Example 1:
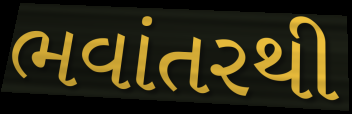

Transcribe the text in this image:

ભવાંતરથી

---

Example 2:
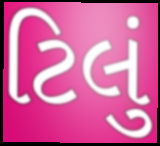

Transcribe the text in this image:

ટિલું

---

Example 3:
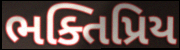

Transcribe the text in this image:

ભક્તિપ્રિય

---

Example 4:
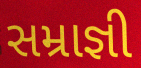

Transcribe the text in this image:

સમ્રાજ્ઞી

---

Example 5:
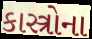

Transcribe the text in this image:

કાસ્ત્રોના